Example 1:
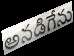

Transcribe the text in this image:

అనడిగేను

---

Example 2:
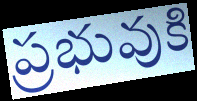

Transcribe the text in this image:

ప్రభువుకి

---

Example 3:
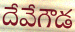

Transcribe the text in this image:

దేవేగౌడ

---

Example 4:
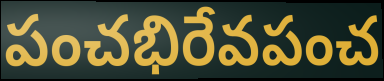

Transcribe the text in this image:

పంచభిరేవపంచ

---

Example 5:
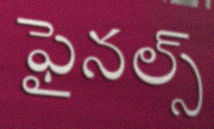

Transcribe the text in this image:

ఫైనల్స్